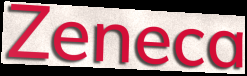
Zeneca